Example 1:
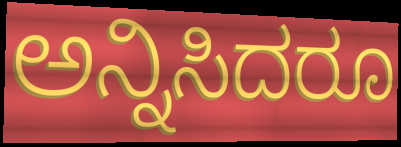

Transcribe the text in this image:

ಅನ್ನಿಸಿದರೂ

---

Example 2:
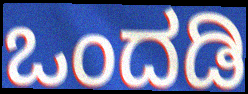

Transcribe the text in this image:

ಒಂದಡಿ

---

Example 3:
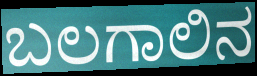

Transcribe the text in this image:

ಬಲಗಾಲಿನ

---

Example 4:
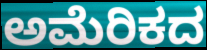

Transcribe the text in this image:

ಅಮೆರಿಕದ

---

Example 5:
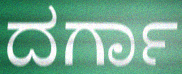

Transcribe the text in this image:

ದರ್ಗಾ